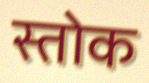
स्तोक